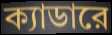
ক্যাডারে